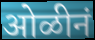
ओळीनं